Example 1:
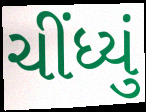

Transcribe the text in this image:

ચીંધ્યું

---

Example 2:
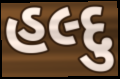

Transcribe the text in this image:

હલ્દુ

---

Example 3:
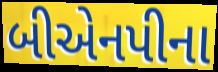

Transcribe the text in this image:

બીએનપીના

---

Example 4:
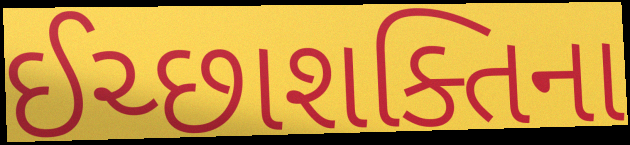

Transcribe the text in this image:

ઈચ્છાશક્તિના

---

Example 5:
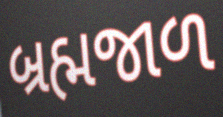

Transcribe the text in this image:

બ્રહ્મજાળ